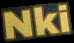
Nki